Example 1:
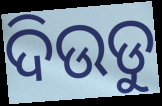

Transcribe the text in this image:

ଦିଉଡୁ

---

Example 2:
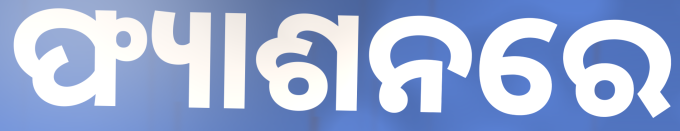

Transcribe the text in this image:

ଫ୍ୟାଶନରେ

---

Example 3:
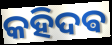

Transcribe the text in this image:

କହିଦଵ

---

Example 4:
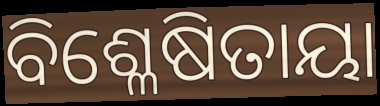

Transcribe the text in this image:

ବିଶ୍ଳେଷିତାୟା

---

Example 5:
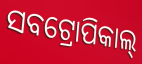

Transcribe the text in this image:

ସବଟ୍ରୋପିକାଲ୍